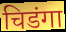
चिडंगा